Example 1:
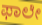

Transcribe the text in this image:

ಫಾಲೇ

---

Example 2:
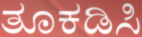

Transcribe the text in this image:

ತೂಕಡಿಸಿ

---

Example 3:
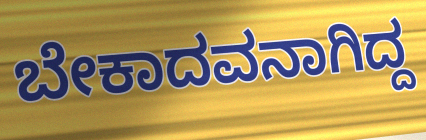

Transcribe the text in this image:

ಬೇಕಾದವನಾಗಿದ್ದ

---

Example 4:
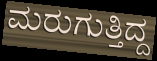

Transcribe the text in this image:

ಮರುಗುತ್ತಿದ್ದ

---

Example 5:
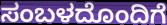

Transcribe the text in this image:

ಸಂಬಳದೊಂದಿಗೆ